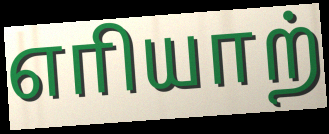
எரியாற்